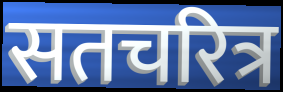
सतचरित्र